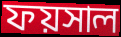
ফয়সাল